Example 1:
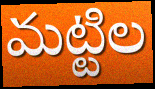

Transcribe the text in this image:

మట్టిల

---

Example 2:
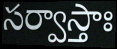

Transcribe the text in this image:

సర్వాస్తాః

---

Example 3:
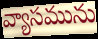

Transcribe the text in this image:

వ్యాసమును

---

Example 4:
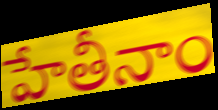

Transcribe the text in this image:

హేతీనాం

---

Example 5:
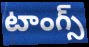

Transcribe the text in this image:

టాంగ్స్